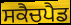
ਸਕੈਚਪੈਡ